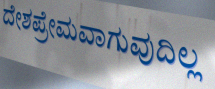
ದೇಶಪ್ರೇಮವಾಗುವುದಿಲ್ಲ